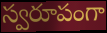
స్వరూపంగా